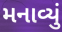
મનાવ્યું